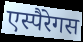
एस्पैरेगस